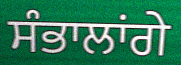
ਸੰਭਾਲਾਂਗੇ